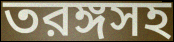
তরঙ্গসহ